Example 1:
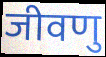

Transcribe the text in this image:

जीवणु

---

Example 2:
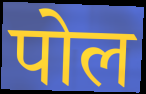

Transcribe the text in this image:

पोल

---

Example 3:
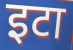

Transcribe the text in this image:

इटा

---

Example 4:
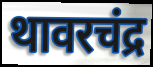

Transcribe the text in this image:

थावरचंद्र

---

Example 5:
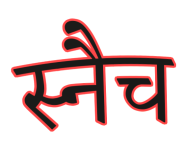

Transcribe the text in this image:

स्नैच